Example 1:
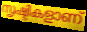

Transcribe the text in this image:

സൃഷ്ടികളാണ്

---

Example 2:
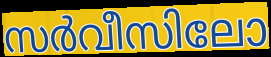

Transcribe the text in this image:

സർവീസിലോ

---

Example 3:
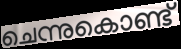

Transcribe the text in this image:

ചെന്നുകൊണ്ട്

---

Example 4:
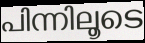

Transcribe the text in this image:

പിന്നിലൂടെ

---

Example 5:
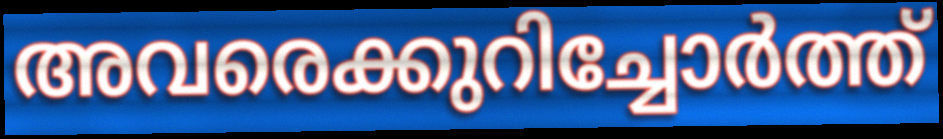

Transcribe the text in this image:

അവരെക്കുറിച്ചോർത്ത്